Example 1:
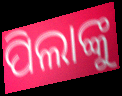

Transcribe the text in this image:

ପିଲାଙ୍କୁ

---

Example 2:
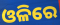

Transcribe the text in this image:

ଓଳିରେ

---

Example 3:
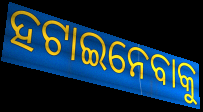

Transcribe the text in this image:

ହଟାଇନେବାକୁ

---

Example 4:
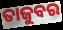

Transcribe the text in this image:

ତାଜୁବର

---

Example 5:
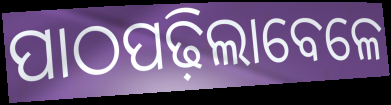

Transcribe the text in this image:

ପାଠପଢ଼ିଲାବେଳେ